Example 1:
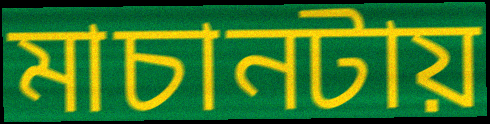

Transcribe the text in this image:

মাচানটায়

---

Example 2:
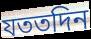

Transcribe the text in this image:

যততদিন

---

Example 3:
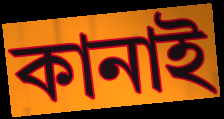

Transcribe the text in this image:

কানাই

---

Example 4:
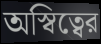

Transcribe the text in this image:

অস্বিত্বের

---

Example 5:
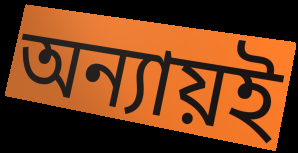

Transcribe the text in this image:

অন্যায়ই